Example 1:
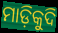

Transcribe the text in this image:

ମାଡ଼ିକୁଦି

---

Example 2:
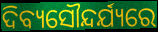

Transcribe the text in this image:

ଦିବ୍ୟସୌନ୍ଦର୍ଯ୍ୟରେ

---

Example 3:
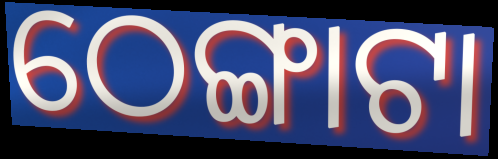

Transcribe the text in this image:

ଠେଙ୍ଗାଟା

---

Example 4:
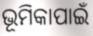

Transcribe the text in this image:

ଭୂମିକାପାଇଁ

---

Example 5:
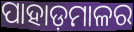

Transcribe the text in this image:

ପାହାଡ଼ମାଳର